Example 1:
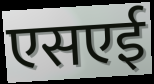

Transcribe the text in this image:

एसएई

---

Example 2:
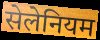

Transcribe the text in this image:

सेलेनियम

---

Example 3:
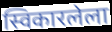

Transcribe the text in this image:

स्विकारलेला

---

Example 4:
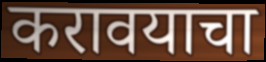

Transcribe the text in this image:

करावयाचा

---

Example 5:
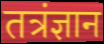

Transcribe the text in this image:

तत्रंज्ञान